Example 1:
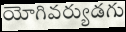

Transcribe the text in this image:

యోగివర్యుడగు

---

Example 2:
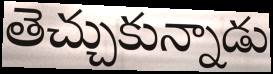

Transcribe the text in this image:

తెచ్చుకున్నాడు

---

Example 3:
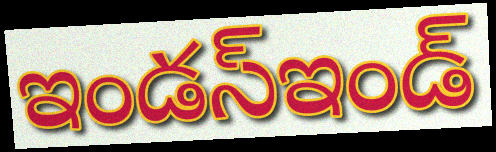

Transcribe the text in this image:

ఇండస్ఇండ్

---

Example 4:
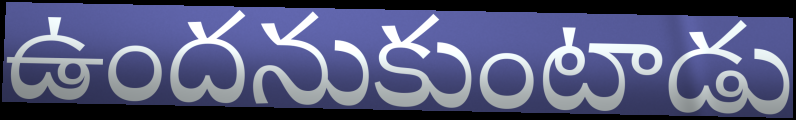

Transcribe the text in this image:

ఉందనుకుంటాడు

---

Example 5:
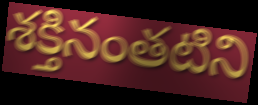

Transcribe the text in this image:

శక్తినంతటిని